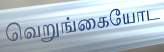
வெறுங்கையோட